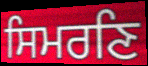
ਸਿਮਰਣਿ